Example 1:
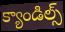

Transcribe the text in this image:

క్యాండిల్స్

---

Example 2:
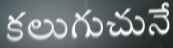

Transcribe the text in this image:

కలుగుచునే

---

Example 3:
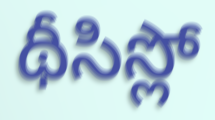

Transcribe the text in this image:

థీసిస్లో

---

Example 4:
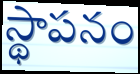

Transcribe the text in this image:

స్థాపనం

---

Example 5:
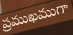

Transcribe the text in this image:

ప్రముఖముగా